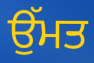
ਉੱਮਤ